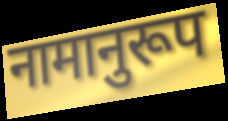
नामानुरूप